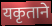
यकृताने